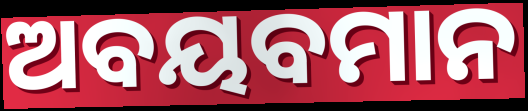
ଅବୟବମାନ